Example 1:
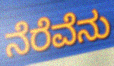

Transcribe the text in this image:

ನೆರೆವೆನು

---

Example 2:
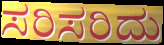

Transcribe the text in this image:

ಸರಿಸರಿದು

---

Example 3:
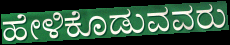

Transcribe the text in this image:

ಹೇಳಿಕೊಡುವವರು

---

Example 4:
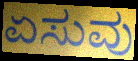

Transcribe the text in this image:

ಏಸುವು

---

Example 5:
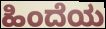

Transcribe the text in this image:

ಹಿಂದೆಯ